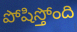
పోషిస్తోంది